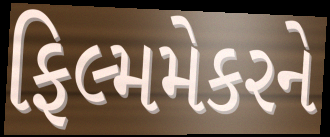
ફિલ્મમેકરને